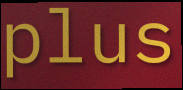
plus